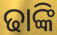
ଢାଙ୍କି